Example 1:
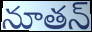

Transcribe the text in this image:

నూతన్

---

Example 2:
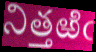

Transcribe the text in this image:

నిత్తఱిఁ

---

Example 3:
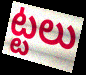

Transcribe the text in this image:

ట్టలు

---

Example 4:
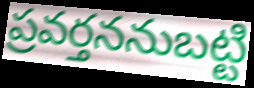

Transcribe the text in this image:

ప్రవర్తననుబట్టి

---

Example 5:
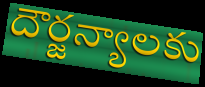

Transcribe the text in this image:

దౌర్జన్యాలకు